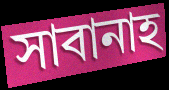
সাবানাহ